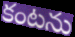
కంటను